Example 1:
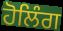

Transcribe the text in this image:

ਹੋਲਿੰਗ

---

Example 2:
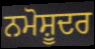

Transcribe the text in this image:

ਨਮੋਸ਼ੂਦਰ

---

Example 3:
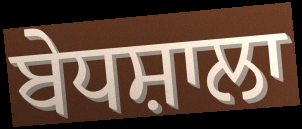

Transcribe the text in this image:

ਬੇਧਸ਼ਾਲਾ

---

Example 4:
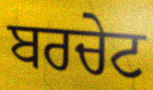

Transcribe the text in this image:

ਬਰਚੇਟ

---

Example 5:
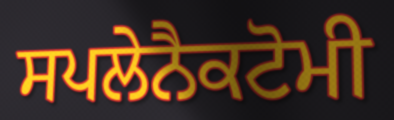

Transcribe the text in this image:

ਸਪਲੇਨੈਕਟੋਮੀ